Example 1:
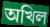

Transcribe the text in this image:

অখিল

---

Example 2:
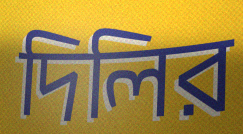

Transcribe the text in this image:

দিলির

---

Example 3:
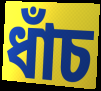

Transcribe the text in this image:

ধাঁচ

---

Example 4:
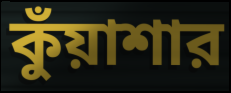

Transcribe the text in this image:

কুঁয়াশার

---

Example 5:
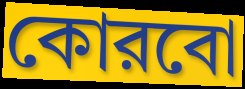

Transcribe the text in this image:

কোরবো